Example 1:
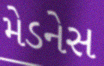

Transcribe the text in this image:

મેડનેસ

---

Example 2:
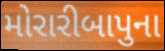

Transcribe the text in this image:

મોરારીબાપુના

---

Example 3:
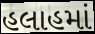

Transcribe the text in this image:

હલાહમાં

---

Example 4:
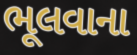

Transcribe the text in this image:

ભૂલવાના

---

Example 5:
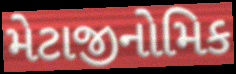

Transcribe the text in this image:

મેટાજીનોમિક